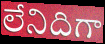
లేనిదిగా